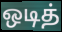
ஒடித்